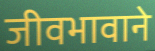
जीवभावाने